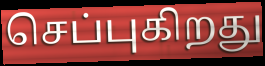
செப்புகிறது